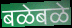
बळेबळे